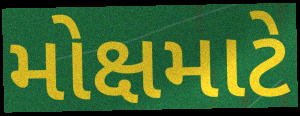
મોક્ષમાટે